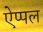
ऐप्पल